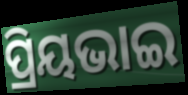
ପ୍ରିୟଭାଇ